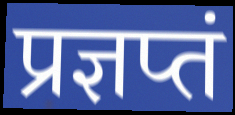
प्रज्ञप्तं